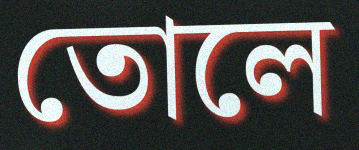
তোলে